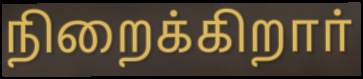
நிறைக்கிறார்